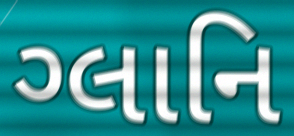
ગ્લાનિ